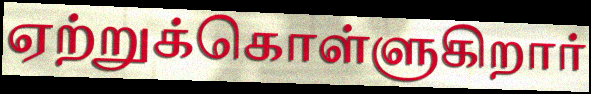
ஏற்றுக்கொள்ளுகிறார்